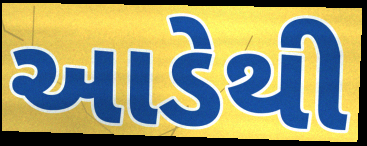
આડેથી